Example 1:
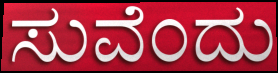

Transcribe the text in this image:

ಸುವೆಂದು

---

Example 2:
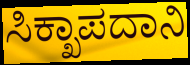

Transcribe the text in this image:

ಸಿಕ್ಖಾಪದಾನಿ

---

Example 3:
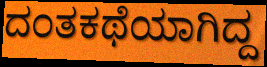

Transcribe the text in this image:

ದಂತಕಥೆಯಾಗಿದ್ದ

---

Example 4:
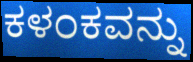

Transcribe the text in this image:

ಕಳಂಕವನ್ನು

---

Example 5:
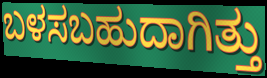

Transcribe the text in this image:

ಬಳಸಬಹುದಾಗಿತ್ತು